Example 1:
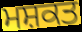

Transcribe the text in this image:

ਮਸ਼ਕਤ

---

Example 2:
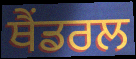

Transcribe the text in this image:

ਥੈਂਡਰਲ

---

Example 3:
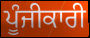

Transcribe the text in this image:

ਪੂੰਜੀਕਾਰੀ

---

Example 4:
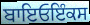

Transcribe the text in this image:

ਬਾਇਓਇੰਕਸ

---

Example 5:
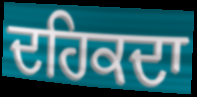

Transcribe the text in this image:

ਦਹਿਕਦਾ